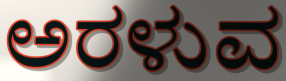
ಅರಳುವ